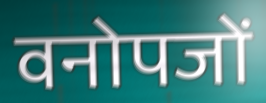
वनोपजों